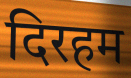
दिरहम